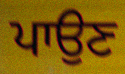
ਪਾਉਣ